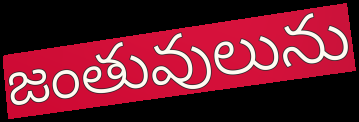
జంతువులును